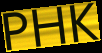
PHK